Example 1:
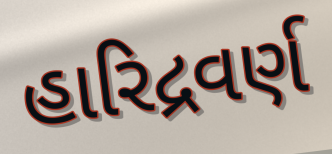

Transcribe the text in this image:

હારિદ્રવર્ણ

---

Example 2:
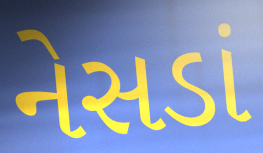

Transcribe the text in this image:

નેસડાં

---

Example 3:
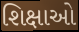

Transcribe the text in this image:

શિક્ષાઓ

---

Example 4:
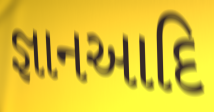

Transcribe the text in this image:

જ્ઞાનઆદિ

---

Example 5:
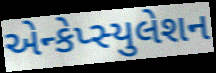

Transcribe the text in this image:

એન્કેપ્સ્યુલેશન